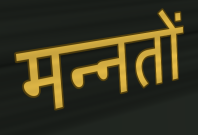
मन्नतों